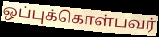
ஒப்புக்கொள்பவர்